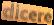
dicere